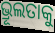
ଭ୍ରୂଲତାକୁ